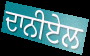
ਦਾਨੀਏਲ